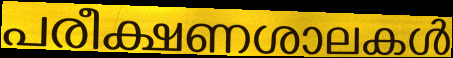
പരീക്ഷണശാലകൾ